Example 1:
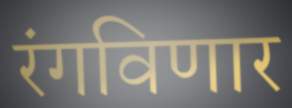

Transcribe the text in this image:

रंगविणार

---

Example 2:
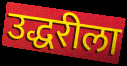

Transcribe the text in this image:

उद्धरीला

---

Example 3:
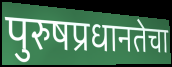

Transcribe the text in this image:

पुरुषप्रधानतेचा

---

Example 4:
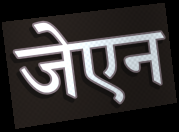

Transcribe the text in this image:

जेएन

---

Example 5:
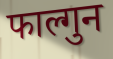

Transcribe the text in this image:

फाल्गुन